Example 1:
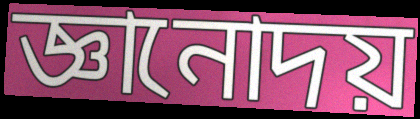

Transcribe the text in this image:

জ্ঞানোদয়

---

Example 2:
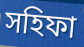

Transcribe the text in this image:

সহিফা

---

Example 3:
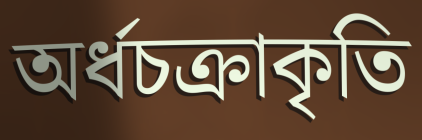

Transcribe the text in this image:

অর্ধচক্রাকৃতি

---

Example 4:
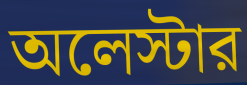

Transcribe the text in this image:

অলেস্টার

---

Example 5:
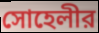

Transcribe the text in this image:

সোহেলীর